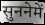
सुननेमें